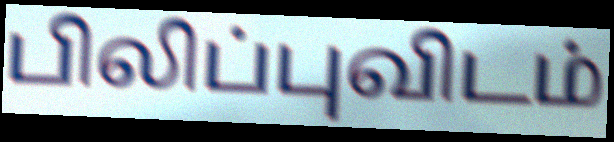
பிலிப்புவிடம்